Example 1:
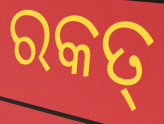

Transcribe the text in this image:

ରକତ୍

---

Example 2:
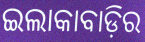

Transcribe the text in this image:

ଇଲାକାବାଡ଼ିର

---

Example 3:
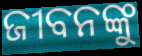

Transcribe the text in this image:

ଜୀବନଙ୍କୁ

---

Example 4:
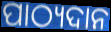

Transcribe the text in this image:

ପାଠ୍ୟଦାନ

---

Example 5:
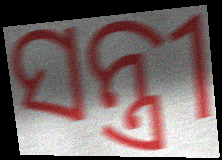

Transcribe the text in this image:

ସନ୍ତ୍ରୀ